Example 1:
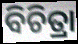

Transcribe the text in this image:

ବିଚିତ୍ରା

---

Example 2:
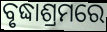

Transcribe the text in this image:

ବୃଦ୍ଧାଶ୍ରମରେ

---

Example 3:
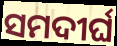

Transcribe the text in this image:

ସମଦୀର୍ଘ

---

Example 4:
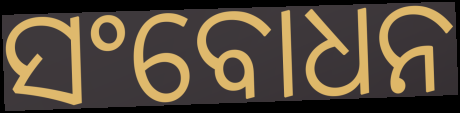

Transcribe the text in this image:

ସଂବୋଧନ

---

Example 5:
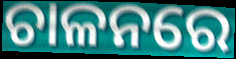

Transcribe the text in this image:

ଚାଳନରେ